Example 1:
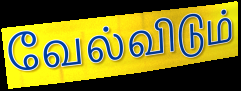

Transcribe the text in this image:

வேல்விடும்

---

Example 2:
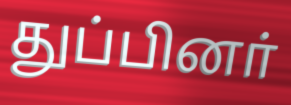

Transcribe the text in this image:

துப்பினர்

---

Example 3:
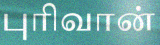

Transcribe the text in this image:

புரிவான்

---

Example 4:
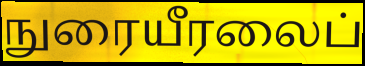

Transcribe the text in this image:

நுரையீரலைப்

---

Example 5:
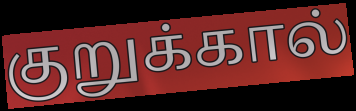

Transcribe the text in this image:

குறுக்கால்